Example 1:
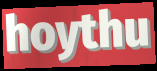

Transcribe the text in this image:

hoythu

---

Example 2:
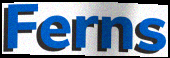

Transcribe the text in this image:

Ferns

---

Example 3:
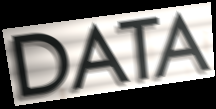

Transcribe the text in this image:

DATA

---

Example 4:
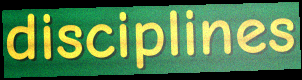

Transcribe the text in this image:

disciplines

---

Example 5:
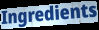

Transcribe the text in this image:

Ingredients